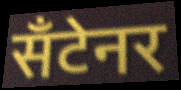
सँटेनर